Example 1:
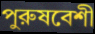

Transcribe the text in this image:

পুরুষবেশী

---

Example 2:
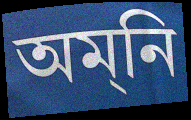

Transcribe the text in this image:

অম্‌নি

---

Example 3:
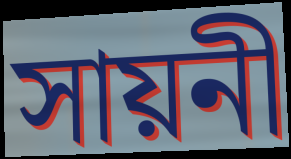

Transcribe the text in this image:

সায়নী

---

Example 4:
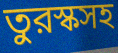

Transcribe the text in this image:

তুরস্কসহ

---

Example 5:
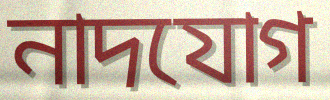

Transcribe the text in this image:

নাদযোগ